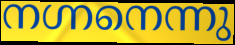
നഗ്നനെന്നു